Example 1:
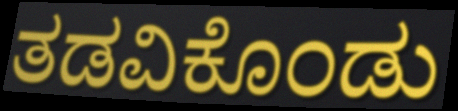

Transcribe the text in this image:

ತಡವಿಕೊಂಡು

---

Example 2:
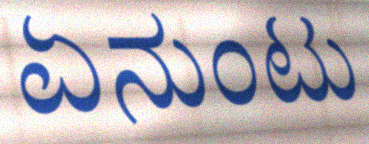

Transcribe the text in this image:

ಏನುಂಟು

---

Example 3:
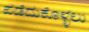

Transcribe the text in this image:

ಪಡೆದುಕೊಳ್ಳಲು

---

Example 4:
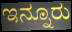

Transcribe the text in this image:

ಇನ್ನೂರು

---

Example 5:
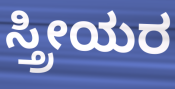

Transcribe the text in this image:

ಸ್ತ್ರೀಯರ